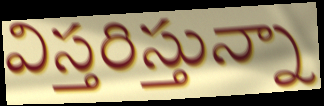
విస్తరిస్తున్నా